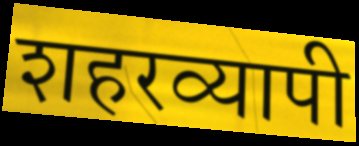
शहरव्यापी